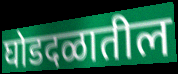
घोडदळातील